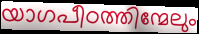
യാഗപീഠത്തിന്മേലും